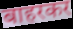
बाहरकर